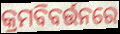
କ୍ରମବିବର୍ତ୍ତନରେ